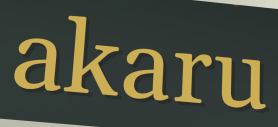
akaru